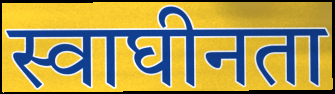
स्वाघीनता